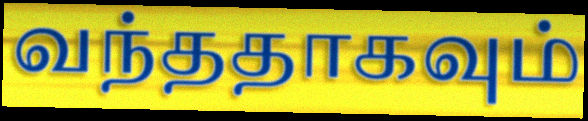
வந்ததாகவும்